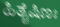
ಹಿತೈಷಿಣಃ